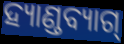
ହ୍ୟାଣ୍ଡବ୍ୟାଗ୍